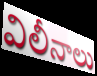
విలీనాలు